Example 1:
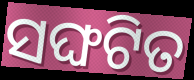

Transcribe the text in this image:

ସଙ୍ଘଟିତ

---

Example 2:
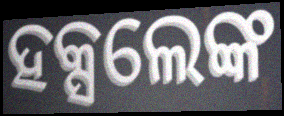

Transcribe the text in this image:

ହକ୍ସଲେଙ୍କ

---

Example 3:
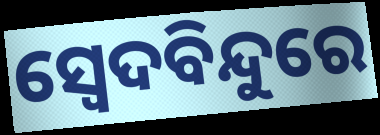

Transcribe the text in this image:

ସ୍ୱେଦବିନ୍ଦୁରେ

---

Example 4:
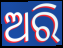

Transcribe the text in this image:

ଅରି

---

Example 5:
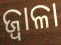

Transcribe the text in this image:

ଜ୍ୱାଳା